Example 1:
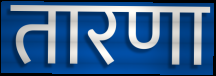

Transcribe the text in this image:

तारणा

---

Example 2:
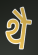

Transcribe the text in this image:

थै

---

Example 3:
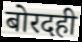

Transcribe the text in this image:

बोरदही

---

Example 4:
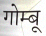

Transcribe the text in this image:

गोम्बू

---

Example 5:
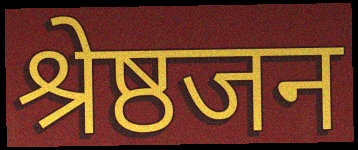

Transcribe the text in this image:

श्रेष्ठजन